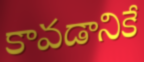
కావడానికే